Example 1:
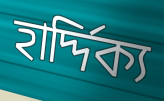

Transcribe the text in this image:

হার্দ্দিক্য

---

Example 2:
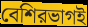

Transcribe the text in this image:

বেশিরভাগই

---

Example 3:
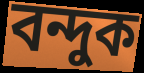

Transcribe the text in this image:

বন্দুক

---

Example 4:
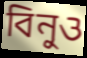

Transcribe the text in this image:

বিনুও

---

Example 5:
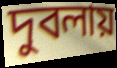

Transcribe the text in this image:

দুবলায়